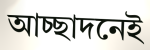
আচ্ছাদনেই